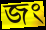
জং